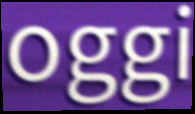
oggi